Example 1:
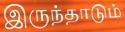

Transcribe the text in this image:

இருந்தாடும்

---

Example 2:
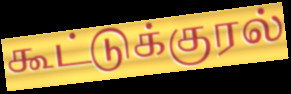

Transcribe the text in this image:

கூட்டுக்குரல்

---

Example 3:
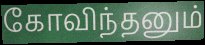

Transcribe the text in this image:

கோவிந்தனும்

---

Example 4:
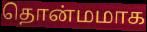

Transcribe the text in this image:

தொன்மமாக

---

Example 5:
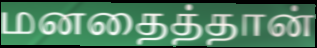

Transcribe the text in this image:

மனதைத்தான்